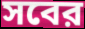
সবের